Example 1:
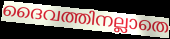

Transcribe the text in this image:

ദൈവത്തിനല്ലാതെ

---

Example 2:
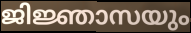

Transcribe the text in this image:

ജിജ്ഞാസയും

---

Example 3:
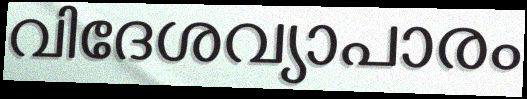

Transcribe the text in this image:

വിദേശവ്യാപാരം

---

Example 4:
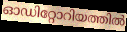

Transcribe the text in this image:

ഓഡിറ്റോറിയത്തിൽ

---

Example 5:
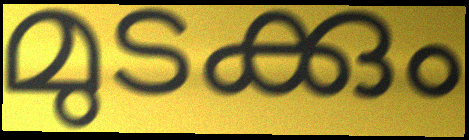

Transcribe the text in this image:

മുടക്കും